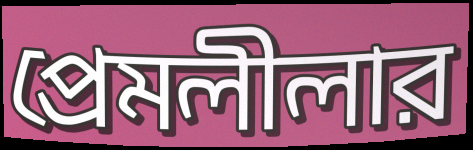
প্রেমলীলার